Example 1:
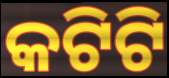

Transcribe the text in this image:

କଟିଟି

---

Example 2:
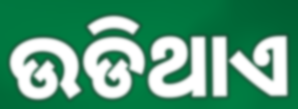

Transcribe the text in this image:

ଉଡିଥାଏ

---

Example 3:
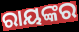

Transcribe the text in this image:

ରାୟଙ୍କର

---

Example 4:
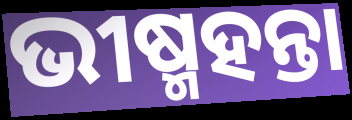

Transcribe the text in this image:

ଭୀଷ୍ମହନ୍ତା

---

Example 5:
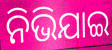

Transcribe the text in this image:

ନିଭିଯାଇ